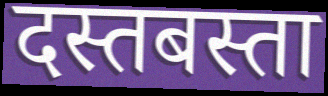
दस्तबस्ता